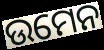
ଉମେନ